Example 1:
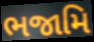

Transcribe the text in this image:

ભજામિ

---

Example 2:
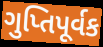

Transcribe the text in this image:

ગુપ્તિપૂર્વક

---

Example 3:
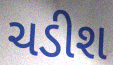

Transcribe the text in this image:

ચડીશ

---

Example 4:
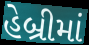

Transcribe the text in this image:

હેબ્રીમાં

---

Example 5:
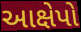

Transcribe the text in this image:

આક્ષેપો